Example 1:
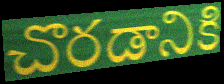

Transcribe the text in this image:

చొరడానికి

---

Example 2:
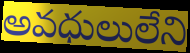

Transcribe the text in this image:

అవధులులేని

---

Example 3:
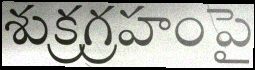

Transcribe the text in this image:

శుక్రగ్రహంపై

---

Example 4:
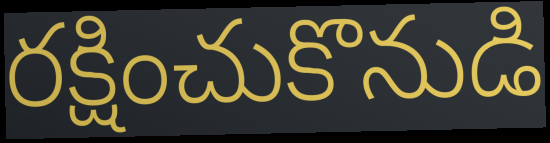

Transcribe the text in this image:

రక్షించుకొనుడి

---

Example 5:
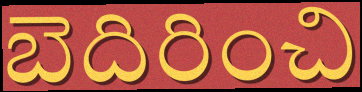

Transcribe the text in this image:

బెదిరించి